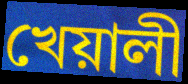
খেয়ালী